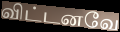
விட்டனவே